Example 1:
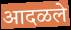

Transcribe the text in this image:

आदळले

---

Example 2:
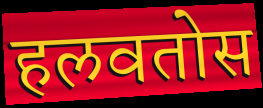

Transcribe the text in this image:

हलवतोस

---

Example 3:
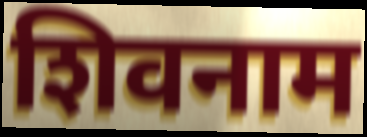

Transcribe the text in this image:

शिवनाम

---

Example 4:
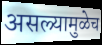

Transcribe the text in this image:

असल्यामुळेच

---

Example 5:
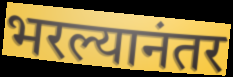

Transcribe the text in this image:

भरल्यानंतर